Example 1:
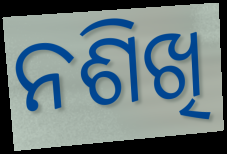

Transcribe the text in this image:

ନଶିଖି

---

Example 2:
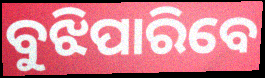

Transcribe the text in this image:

ବୁଝିପାରିବେ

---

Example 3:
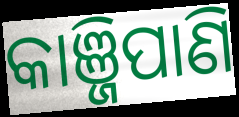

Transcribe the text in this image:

କାଞ୍ଜିପାଣି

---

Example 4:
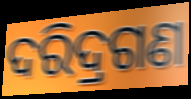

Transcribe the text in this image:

ଦରିଦ୍ରଗଣ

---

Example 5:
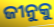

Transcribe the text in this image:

ଜୀନୁକୁ